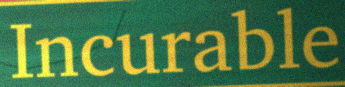
Incurable